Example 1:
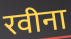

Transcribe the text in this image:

रवीना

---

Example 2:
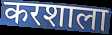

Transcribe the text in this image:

करशाला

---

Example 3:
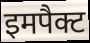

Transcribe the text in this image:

इमपैक्ट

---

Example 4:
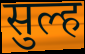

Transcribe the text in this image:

सुल्ह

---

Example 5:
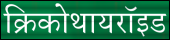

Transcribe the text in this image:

क्रिकोथायरॉइड